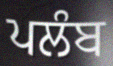
ਪਲੰਬ